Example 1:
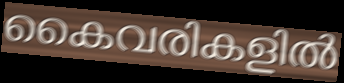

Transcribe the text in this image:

കൈവരികളിൽ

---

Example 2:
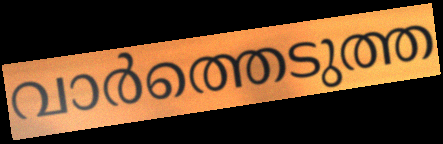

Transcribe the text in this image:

വാർത്തെടുത്ത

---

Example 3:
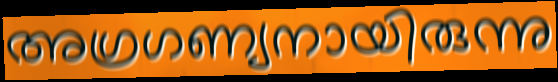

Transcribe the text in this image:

അഗ്രഗണ്യനായിരുന്നു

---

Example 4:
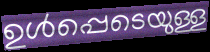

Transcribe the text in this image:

ഉൾപ്പെടെയുള്ള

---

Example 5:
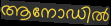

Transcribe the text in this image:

ആനോഡിൽ